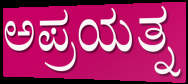
ಅಪ್ರಯತ್ನ